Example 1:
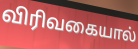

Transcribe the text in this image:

விரிவகையால்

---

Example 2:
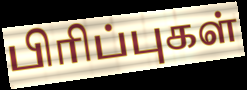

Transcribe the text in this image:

பிரிப்புகள்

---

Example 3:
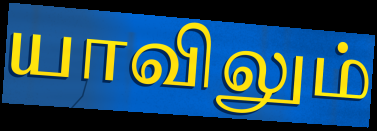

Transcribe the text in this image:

யாவிலும்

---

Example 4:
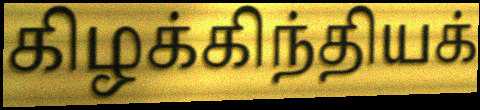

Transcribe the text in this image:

கிழக்கிந்தியக்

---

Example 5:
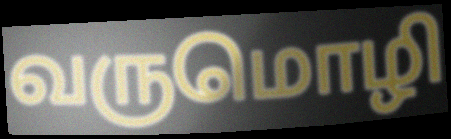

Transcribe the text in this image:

வருமொழி